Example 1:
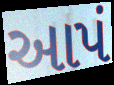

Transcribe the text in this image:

આપં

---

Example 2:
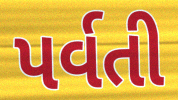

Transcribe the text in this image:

પર્વતી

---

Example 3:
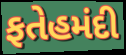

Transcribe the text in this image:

ફતેહમંદી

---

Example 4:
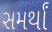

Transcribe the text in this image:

સમર્થાં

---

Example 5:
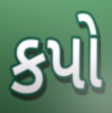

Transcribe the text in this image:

કપો